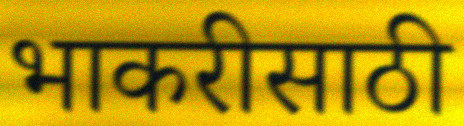
भाकरीसाठी